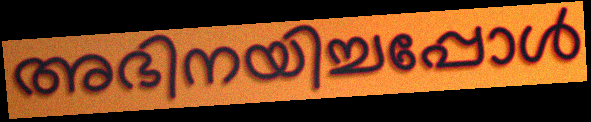
അഭിനയിച്ചപ്പോൾ